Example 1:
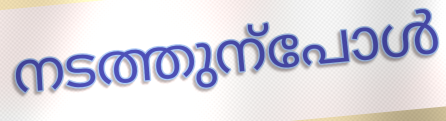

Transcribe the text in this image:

നടത്തുന്പോൾ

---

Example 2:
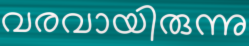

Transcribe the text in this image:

വരവായിരുന്നു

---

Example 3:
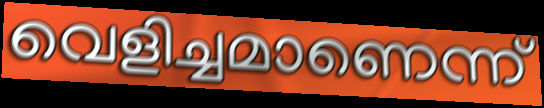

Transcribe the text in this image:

വെളിച്ചമാണെന്ന്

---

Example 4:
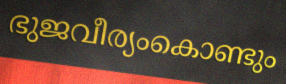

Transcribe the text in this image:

ഭുജവീര്യംകൊണ്ടും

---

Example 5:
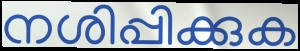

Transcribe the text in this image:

നശിപ്പിക്കുക